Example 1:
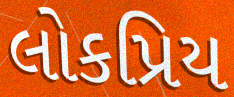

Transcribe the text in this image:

લોકપ્રિય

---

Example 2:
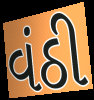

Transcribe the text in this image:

વંઠી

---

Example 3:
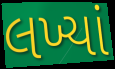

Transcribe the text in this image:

લખ્યાં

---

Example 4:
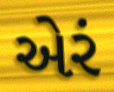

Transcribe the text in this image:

એરં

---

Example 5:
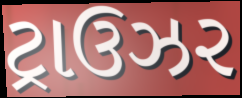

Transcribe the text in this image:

ટ્રાઉઝર